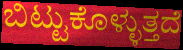
ಬಿಟ್ಟುಕೊಳ್ಳುತ್ತದೆ